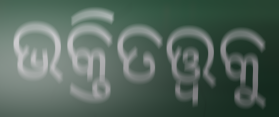
ଭକ୍ତିତତ୍ତ୍ୱକୁ